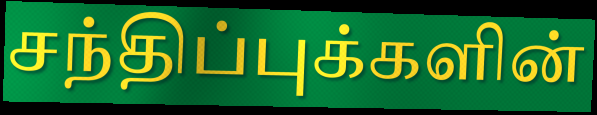
சந்திப்புக்களின்